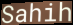
Sahih